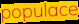
populace